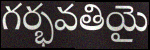
గర్భవతియై